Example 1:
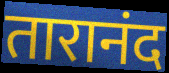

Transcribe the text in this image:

तारानंद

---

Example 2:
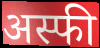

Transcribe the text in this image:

अस्फी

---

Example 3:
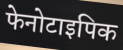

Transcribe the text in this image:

फेनोटाइपिक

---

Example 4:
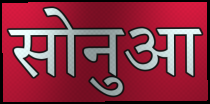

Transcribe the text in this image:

सोनुआ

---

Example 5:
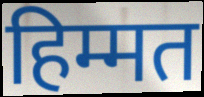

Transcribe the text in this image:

हिम्‍मत